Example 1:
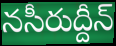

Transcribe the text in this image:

నసీరుద్దీన్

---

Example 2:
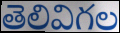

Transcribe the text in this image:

తెలివిగల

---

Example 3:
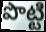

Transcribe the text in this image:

పొట్టి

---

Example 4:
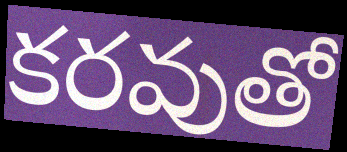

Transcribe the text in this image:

కరవుతో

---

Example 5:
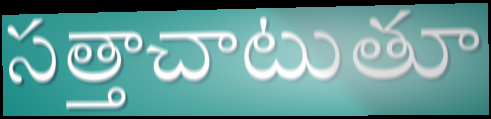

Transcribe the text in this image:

సత్తాచాటుతూ